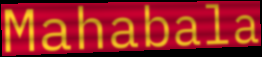
Mahabala